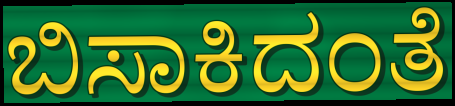
ಬಿಸಾಕಿದಂತೆ